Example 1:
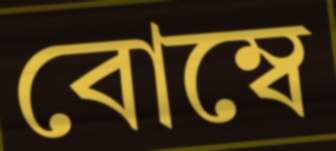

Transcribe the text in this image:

বোম্বে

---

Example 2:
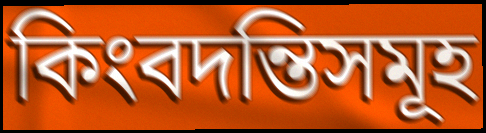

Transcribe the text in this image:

কিংবদন্তিসমূহ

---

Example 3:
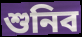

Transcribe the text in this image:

শুনিব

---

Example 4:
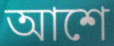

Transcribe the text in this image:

আশে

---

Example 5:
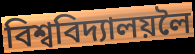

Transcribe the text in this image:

বিশ্ববিদ্যালয়লৈ